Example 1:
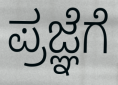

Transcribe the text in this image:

ಪ್ರಜ್ಞೆಗೆ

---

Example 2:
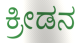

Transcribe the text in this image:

ಕ್ರೀಡನ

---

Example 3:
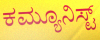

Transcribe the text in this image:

ಕಮ್ಯೂನಿಸ್ಟ್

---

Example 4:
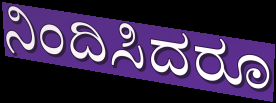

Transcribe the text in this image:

ನಿಂದಿಸಿದರೂ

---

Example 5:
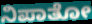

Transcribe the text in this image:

ನಿಪಾತೋ